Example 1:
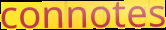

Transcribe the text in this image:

connotes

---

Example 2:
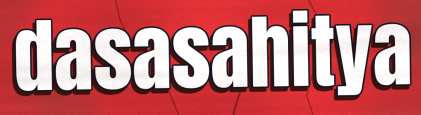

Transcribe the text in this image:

dasasahitya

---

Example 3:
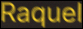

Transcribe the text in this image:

Raquel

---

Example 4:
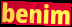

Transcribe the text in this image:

benim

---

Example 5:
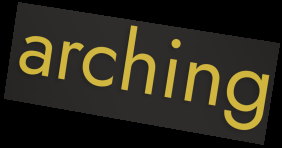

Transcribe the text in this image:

arching